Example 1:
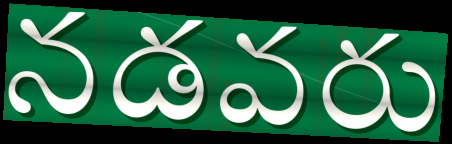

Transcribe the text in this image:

నడవరు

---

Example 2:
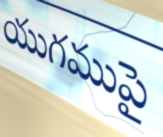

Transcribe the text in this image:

యుగముపై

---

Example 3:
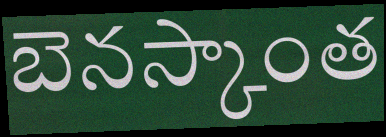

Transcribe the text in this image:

బెనస్కాంత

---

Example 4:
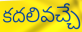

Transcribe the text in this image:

కదలివచ్చే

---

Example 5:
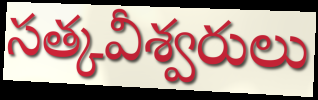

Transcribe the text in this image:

సత్కవీశ్వరులు